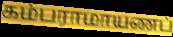
கம்பராமாயணப்